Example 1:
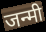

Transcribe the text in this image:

जन्मी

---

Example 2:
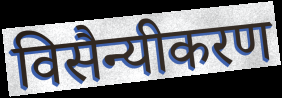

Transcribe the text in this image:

विसैन्यीकरण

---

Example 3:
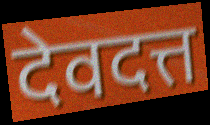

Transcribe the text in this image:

देवदत्त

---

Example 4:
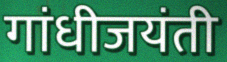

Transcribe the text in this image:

गांधीजयंती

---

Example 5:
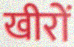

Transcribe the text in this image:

खीरों